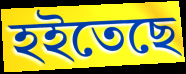
হইতেছে